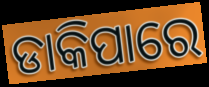
ଡାକିପାରେ